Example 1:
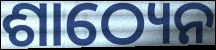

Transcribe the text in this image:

ଶାଠ୍ୟେନ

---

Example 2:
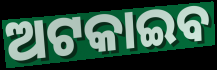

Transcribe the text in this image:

ଅଟକାଇବ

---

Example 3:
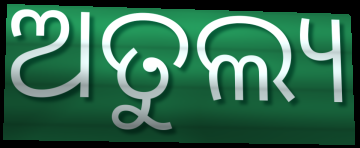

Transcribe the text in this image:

ଅତୁଲ୍ୟ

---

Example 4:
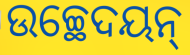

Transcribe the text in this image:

ଉଚ୍ଛେଦୟନ୍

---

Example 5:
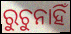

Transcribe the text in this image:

ରୁଚୁନାହିଁ